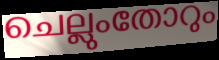
ചെല്ലുംതോറും